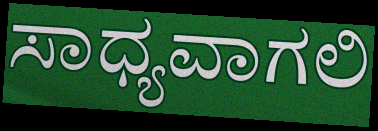
ಸಾಧ್ಯವಾಗಲಿ